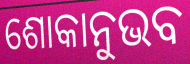
ଶୋକାନୁଭବ